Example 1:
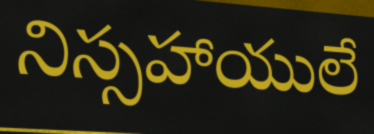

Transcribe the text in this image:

నిస్సహాయులే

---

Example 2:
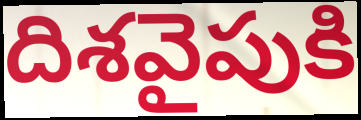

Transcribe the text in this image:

దిశవైపుకి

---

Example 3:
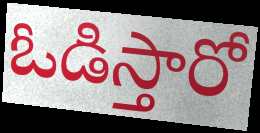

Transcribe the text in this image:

ఓడిస్తారో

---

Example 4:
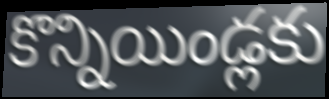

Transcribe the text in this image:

కొన్నియిండ్లకు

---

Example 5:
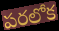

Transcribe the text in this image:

పరలోక